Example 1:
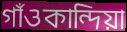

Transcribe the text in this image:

গাঁওকান্দিয়া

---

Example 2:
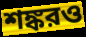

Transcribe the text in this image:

শঙ্করও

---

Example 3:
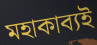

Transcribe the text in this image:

মহাকাব্যই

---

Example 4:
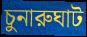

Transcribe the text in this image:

চুনারুঘাট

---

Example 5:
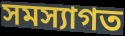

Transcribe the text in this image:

সমস্যাগত